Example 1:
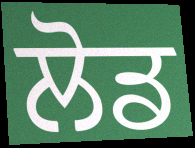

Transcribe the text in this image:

ਲੋਡ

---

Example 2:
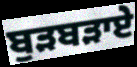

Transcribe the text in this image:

ਬੁੜਬੜਾਏ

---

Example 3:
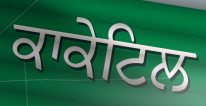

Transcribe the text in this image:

ਕਾਕੇਟਿਲ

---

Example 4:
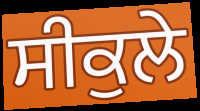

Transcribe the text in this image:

ਸੀਕੁਲੇ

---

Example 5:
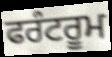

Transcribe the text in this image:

ਫਰੰਟਰੂਮ